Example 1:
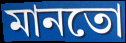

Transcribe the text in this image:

মানতো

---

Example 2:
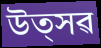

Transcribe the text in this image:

উত্সৱ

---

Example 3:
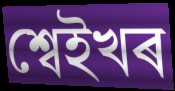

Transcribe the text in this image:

শ্বেইখৰ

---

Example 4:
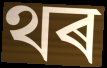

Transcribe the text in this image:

থৰ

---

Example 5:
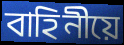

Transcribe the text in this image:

বাহিনীয়ে